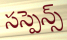
సస్పెన్స్